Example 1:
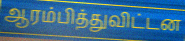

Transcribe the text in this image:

ஆரம்பித்துவிட்டன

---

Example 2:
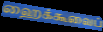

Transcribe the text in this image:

ஹைக்கூவைப்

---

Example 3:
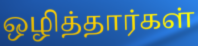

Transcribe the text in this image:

ஒழித்தார்கள்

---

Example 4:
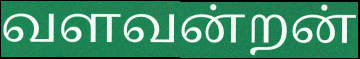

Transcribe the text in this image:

வளவன்றன்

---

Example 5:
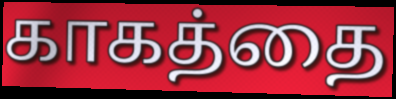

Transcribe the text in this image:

காகத்தை